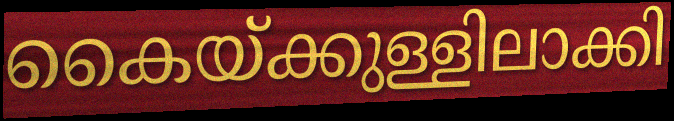
കൈയ്ക്കുള്ളിലാക്കി